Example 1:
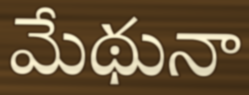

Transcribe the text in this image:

మేథునా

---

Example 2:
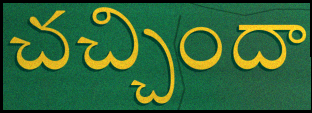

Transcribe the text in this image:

చచ్చిందా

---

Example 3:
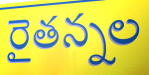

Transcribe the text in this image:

రైతన్నల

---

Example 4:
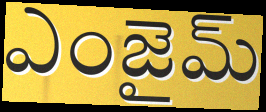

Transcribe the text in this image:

ఎంజైమ్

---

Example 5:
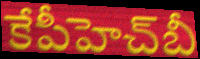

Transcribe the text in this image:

కేపీహెచ్‌బీ